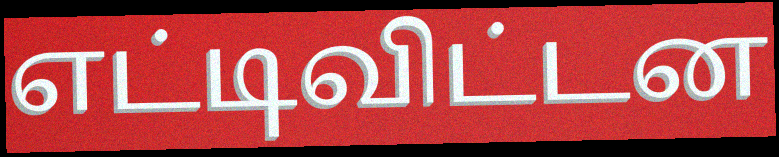
எட்டிவிட்டன